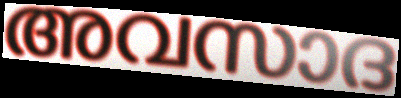
അവസാദ